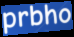
prbho